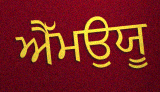
ਐੱਮਉਯੂ